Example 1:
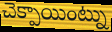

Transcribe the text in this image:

చెక్పాయింట్ను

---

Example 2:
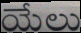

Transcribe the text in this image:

యేలు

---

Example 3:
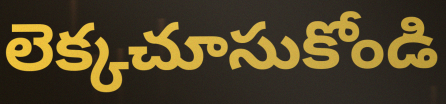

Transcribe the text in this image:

లెక్కచూసుకోండి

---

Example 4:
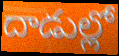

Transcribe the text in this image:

దాడుల్లో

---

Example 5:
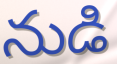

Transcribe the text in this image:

నుడి